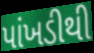
પાંખડીથી